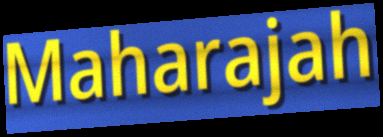
Maharajah